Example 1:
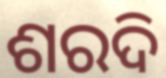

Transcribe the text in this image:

ଶରଦି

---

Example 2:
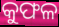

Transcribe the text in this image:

କୁଫଳ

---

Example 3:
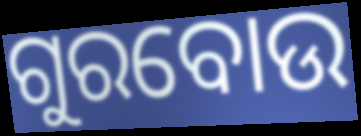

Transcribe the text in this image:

ଗୁରବୋଉ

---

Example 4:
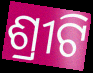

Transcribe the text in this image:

ଶ୍ରୀଟି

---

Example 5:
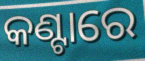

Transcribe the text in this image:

କଣ୍ଟାରେ